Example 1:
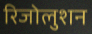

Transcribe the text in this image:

रिजोलुशन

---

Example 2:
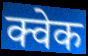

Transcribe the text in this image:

क्वेक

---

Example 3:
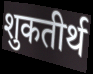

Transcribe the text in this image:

शुकतीर्थ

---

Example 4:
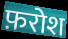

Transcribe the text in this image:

फ़रोश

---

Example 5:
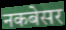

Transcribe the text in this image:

नकबेसर